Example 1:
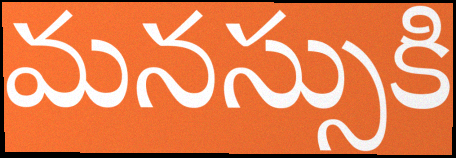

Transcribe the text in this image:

మనస్సుకి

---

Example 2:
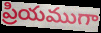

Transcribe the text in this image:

ప్రియముగా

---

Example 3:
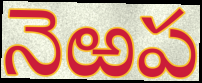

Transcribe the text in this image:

నెఱప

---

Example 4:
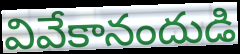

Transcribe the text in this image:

వివేకానందుడి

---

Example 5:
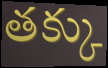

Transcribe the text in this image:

తక్కు